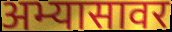
अभ्यासावर